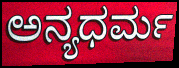
ಅನ್ಯಧರ್ಮ